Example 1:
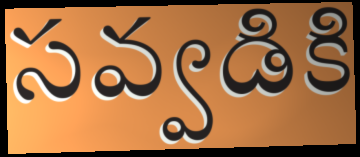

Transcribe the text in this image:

సవ్వడికి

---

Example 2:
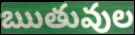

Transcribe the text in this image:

ఋతువుల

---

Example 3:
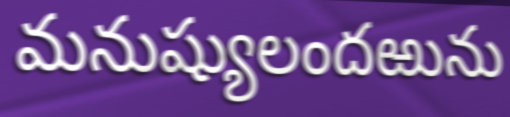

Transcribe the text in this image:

మనుష్యులందఱును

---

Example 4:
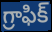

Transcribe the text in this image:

గ్రాఫిక్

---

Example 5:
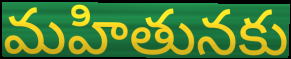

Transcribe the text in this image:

మహితునకు